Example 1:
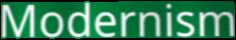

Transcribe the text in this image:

Modernism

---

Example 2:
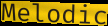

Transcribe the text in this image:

Melodic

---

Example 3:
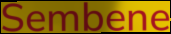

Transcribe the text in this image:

Sembene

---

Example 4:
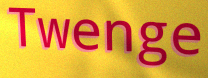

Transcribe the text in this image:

Twenge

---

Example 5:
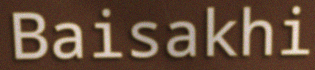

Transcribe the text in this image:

Baisakhi